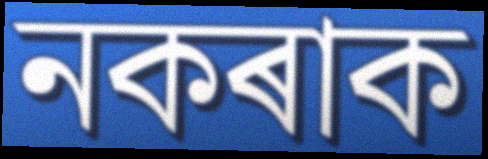
নকৰাক